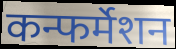
कन्‍फर्मेशन